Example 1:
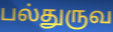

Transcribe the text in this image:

பல்துருவ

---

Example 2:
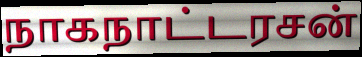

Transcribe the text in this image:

நாகநாட்டரசன்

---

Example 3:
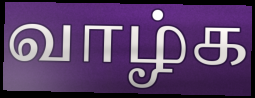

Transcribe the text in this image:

வாழ்க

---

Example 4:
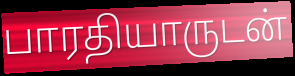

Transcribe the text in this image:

பாரதியாருடன்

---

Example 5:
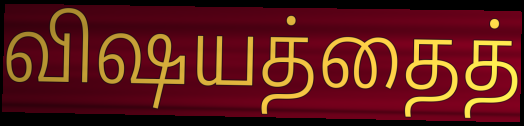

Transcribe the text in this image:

விஷயத்தைத்